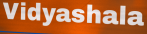
Vidyashala